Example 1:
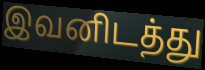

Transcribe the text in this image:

இவனிடத்து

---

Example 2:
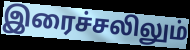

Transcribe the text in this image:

இரைச்சலிலும்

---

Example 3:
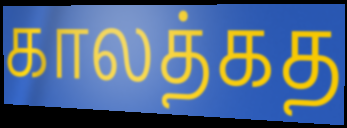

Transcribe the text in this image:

காலத்கத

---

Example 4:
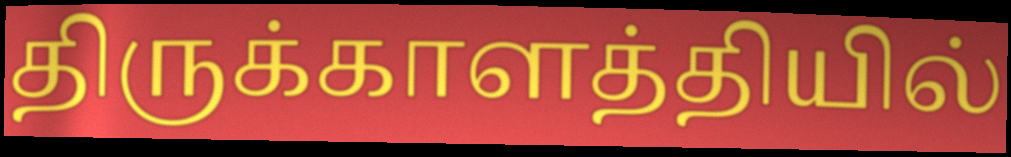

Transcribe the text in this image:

திருக்காளத்தியில்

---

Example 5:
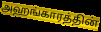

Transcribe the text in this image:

அஹங்காரத்தின்